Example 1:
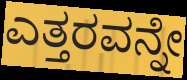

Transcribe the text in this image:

ಎತ್ತರವನ್ನೇ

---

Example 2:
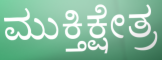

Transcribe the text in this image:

ಮುಕ್ತಿಕ್ಷೇತ್ರ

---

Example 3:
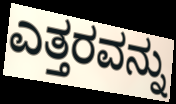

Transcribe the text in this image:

ಎತ್ತರವನ್ನು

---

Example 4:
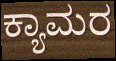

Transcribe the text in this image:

ಕ್ಯಾಮರ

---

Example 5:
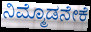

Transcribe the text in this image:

ನಿಮ್ಮೊಡನೇಕೆ